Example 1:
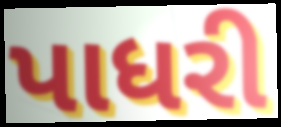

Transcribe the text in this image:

પાધરી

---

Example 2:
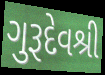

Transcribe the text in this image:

ગુરૂદેવશ્રી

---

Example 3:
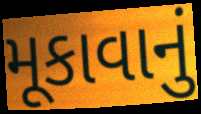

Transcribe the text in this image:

મૂકાવાનું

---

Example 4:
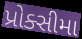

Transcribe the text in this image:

પ્રોક્સીમા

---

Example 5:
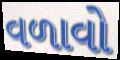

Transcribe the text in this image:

વળાવો